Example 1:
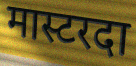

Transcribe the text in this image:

मास्टरदा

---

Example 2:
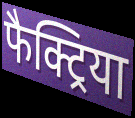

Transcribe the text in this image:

फैक्ट्रिया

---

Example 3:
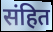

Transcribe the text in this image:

संहित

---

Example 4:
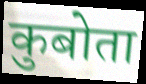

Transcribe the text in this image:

कुबोता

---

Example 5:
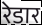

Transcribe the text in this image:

रेडार